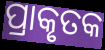
ପ୍ରାକୃତକ